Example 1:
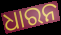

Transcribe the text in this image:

ଧାରନ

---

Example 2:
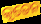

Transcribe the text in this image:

କୃତେନ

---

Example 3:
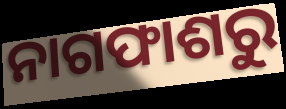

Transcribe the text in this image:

ନାଗଫାଶରୁ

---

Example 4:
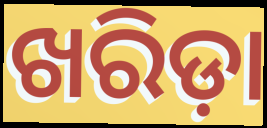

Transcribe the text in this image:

ଖରିଡ଼ା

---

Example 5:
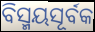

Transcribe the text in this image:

ବିସ୍ମୟସୂର୍ବକ